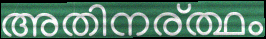
അതിനര്ത്ഥം